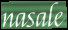
nasale